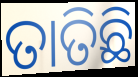
ତାତିଛି